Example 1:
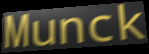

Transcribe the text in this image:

Munck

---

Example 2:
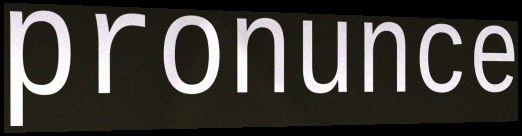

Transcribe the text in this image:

pronunce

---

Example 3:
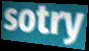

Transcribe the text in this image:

sotry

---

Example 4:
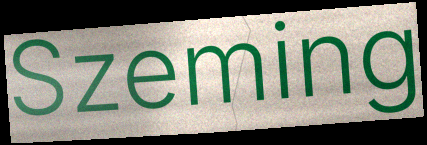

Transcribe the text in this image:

Szeming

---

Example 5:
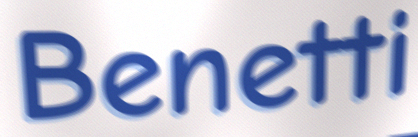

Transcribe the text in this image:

Benetti